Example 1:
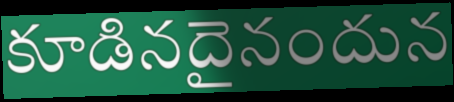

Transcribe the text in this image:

కూడినదైనందున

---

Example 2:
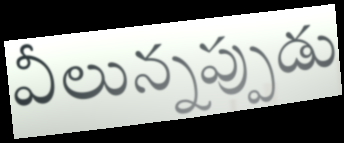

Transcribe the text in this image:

వీలున్నప్పుడు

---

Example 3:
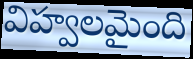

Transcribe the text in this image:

విహ్వలమైంది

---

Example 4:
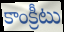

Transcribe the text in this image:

కాంక్రీటు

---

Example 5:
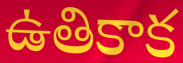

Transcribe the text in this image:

ఉతికాక